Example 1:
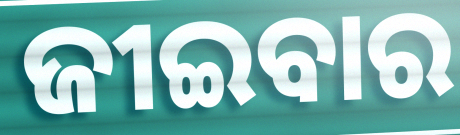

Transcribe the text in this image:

ଜୀଇବାର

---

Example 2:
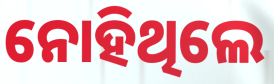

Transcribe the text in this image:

ନୋହିଥିଲେ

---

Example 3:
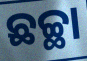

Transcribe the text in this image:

ଛଚ୍ଛା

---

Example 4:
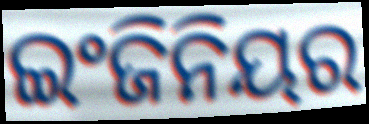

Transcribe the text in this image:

ଇଂଜିନିୟର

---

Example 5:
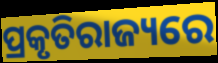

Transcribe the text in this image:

ପ୍ରକୃତିରାଜ୍ୟରେ